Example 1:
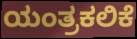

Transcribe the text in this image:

ಯಂತ್ರಕಲಿಕೆ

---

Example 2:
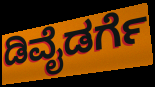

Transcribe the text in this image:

ಡಿವೈಡರ್ಗೆ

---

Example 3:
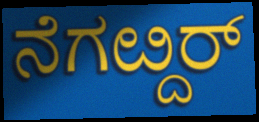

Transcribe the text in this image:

ನೆಗೞ್ದರ್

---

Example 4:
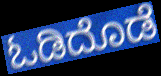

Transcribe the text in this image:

ಓಡಿದೊಡೆ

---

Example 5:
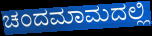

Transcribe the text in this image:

ಚಂದಮಾಮದಲ್ಲಿ